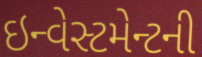
ઇન્વેસ્ટમેન્ટની